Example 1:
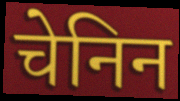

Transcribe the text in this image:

चेनिन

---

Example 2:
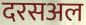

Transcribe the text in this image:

दरसअल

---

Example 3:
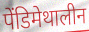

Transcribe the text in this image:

पेंडिमेथालीन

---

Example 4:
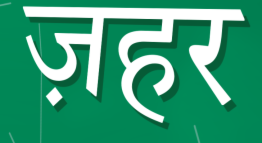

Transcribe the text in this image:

ज़हर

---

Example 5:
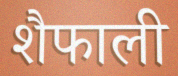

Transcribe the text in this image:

शैफाली